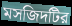
মসজিদটির